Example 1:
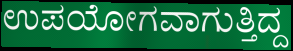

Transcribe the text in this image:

ಉಪಯೋಗವಾಗುತ್ತಿದ್ದ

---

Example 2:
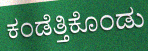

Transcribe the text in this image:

ಕಂಡೆತ್ತಿಕೊಂಡು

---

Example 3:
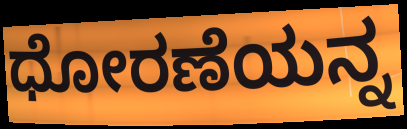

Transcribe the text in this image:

ಧೋರಣೆಯನ್ನ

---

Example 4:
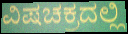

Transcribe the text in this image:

ವಿಷಚಕ್ರದಲ್ಲಿ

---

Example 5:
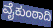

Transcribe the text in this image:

ವೈಕುಂಠಾದಿ